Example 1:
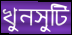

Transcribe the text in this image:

খুনসুটি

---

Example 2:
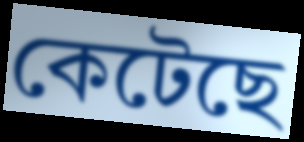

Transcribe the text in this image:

কেটেছে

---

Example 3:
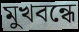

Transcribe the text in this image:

মুখবন্ধে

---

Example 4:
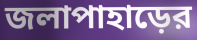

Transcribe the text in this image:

জলাপাহাড়ের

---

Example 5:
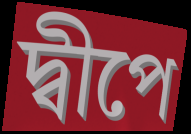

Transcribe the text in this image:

দ্বীপে